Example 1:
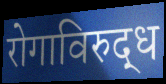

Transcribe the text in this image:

रोगाविरुद्ध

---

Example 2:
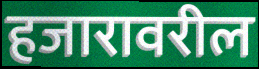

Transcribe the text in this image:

हजारावरील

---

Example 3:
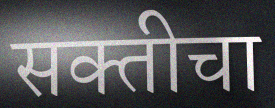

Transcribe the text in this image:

सक्‍तीचा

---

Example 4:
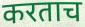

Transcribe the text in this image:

करताच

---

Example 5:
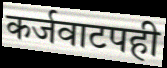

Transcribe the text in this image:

कर्जवाटपही